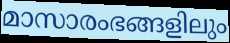
മാസാരംഭങ്ങളിലും